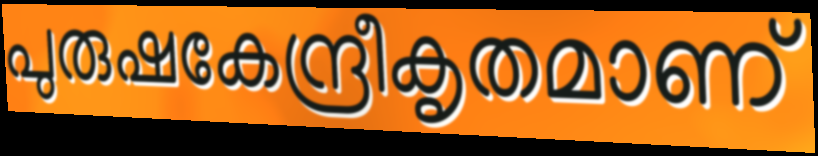
പുരുഷകേന്ദ്രീകൃതമാണ്